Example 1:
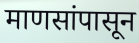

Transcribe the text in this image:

माणसांपासून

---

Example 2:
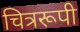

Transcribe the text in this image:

चित्ररूपी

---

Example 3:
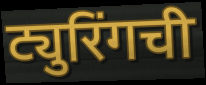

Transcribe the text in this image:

ट्युरिंगची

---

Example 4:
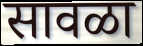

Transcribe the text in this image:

सावळा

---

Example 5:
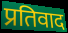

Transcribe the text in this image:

प्रतिवाद